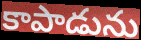
కాపాడును